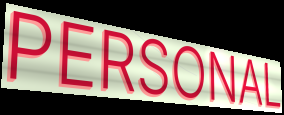
PERSONAL